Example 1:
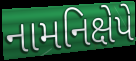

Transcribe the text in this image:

નામનિક્ષેપે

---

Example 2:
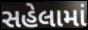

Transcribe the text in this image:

સહેલામાં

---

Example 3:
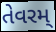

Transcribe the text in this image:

તેવરમ્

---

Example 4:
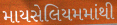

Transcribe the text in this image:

માયસેલિયમમાંથી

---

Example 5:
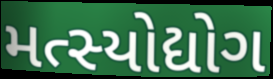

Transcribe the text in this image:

મત્સ્યોદ્યોગ